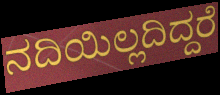
ನದಿಯಿಲ್ಲದಿದ್ದರೆ